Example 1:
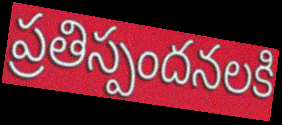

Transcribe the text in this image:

ప్రతిస్పందనలకి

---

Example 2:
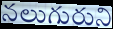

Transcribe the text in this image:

నలుగురుని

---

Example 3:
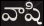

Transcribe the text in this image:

వాషి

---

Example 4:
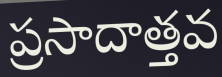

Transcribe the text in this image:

ప్రసాదాత్తవ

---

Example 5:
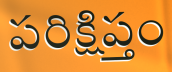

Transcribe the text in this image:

పరిక్షిప్తం